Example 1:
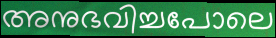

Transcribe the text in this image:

അനുഭവിച്ചപോലെ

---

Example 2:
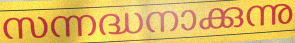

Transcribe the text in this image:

സന്നദ്ധനാക്കുന്നു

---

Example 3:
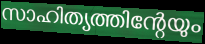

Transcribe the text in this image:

സാഹിത്യത്തിന്റേയും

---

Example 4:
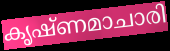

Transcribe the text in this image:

കൃഷ്ണമാചാരി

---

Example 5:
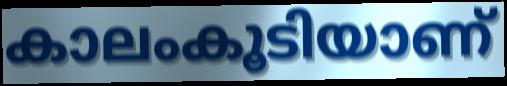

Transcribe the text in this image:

കാലംകൂടിയാണ്